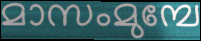
മാസംമുമ്പേ